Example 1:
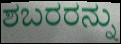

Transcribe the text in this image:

ಶಬರರನ್ನು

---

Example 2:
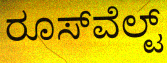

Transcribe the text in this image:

ರೂಸ್‌ವೆಲ್ಟ್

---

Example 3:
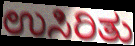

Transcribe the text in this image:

ಉಸಿರಿತು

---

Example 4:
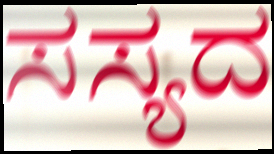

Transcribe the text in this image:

ಸಸ್ಯದ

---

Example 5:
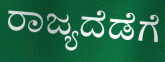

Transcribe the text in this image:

ರಾಜ್ಯದೆಡೆಗೆ